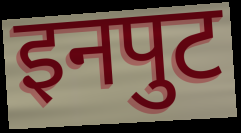
इनपुट